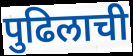
पुढिलाची